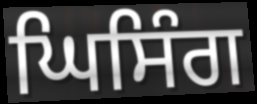
ਘਿਸਿੰਗ